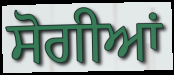
ਸੋਗੀਆਂ